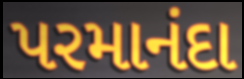
પરમાનંદા